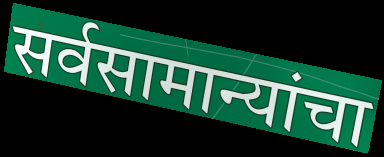
सर्वसामान्यांचा